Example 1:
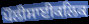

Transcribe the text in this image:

ਪੌਲੀਸਾਈਕਲਿਕ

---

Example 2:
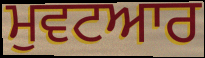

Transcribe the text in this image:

ਮੁਵਟਆਰ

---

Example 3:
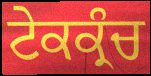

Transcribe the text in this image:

ਟੇਕਕ੍ਰੰਚ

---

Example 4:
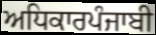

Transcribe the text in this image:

ਅਧਿਕਾਰਪੰਜਾਬੀ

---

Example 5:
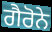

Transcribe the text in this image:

ਗੈਰੋਨੇ